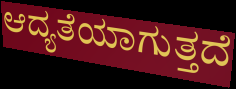
ಆದ್ಯತೆಯಾಗುತ್ತದೆ